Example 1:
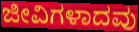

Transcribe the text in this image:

ಜೀವಿಗಳಾದವು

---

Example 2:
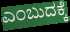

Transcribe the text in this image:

ಎಂಬುದಕ್ಕೆ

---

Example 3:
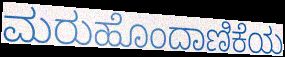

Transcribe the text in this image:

ಮರುಹೊಂದಾಣಿಕೆಯ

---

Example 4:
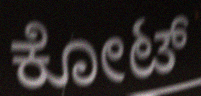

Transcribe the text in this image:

ಕೋಟ್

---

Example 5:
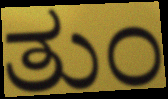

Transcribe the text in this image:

ತುಂ